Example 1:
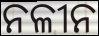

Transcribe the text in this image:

ନଳୀନ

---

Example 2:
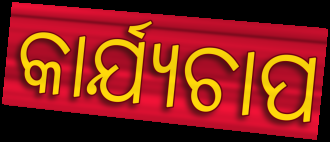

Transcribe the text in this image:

କାର୍ଯ୍ୟଚାପ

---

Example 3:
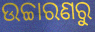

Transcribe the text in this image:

ଉଚ୍ଚାରଣରୁ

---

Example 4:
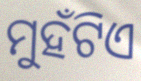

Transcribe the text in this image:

ମୁହଁଟିଏ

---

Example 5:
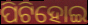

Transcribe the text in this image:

ପିଟିହୋଇ